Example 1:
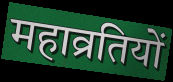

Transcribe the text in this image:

महाव्रतियों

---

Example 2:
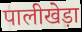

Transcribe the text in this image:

पालीखेड़ा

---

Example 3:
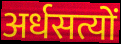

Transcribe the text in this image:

अर्धसत्यों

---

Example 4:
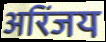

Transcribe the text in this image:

अरिंजय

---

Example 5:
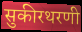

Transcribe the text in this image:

सुकीरथरणी